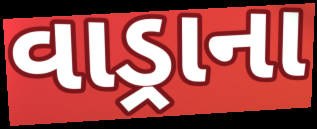
વાડ્રાના